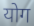
योग